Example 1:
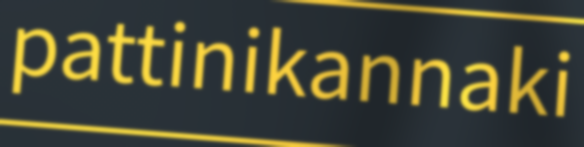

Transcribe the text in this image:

pattinikannaki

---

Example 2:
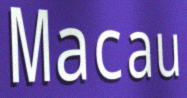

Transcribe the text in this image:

Macau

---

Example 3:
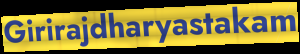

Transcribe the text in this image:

Girirajdharyastakam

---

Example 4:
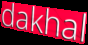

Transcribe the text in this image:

dakhal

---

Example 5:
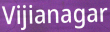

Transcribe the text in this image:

Vijianagar